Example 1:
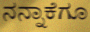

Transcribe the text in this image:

ನನ್ನಾಕೆಗೂ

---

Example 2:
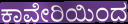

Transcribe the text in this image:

ಕಾವೇರಿಯಿಂದ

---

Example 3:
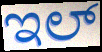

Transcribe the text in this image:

ಇಲ್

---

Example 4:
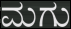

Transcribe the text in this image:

ಮಗು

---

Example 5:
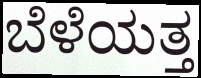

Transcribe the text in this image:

ಬೆಳೆಯತ್ತ